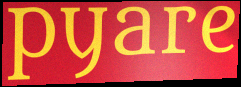
pyare